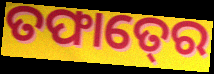
ତଫାତ୍‍ରେ